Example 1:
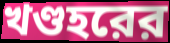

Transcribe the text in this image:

খণ্ডহরের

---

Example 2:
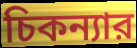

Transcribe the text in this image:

চিকন্যার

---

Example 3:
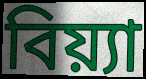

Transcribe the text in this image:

বিয়্যা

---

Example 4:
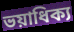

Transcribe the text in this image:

ভয়াধিক্য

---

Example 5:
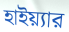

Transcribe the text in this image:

হাইয়্যার